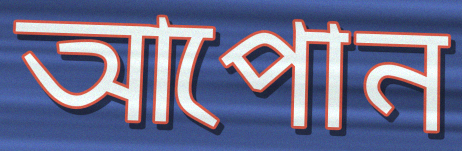
আপোন